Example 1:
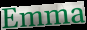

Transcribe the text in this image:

Emma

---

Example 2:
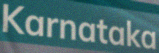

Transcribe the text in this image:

Karnataka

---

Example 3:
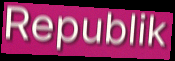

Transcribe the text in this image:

Republik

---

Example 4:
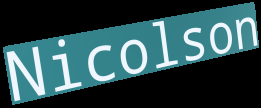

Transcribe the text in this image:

Nicolson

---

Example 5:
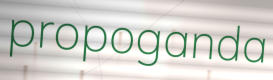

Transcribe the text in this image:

propoganda